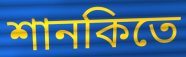
শানকিতে